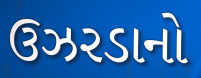
ઉઝરડાનો